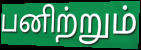
பனிற்றும்